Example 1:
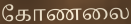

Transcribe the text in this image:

கோணலை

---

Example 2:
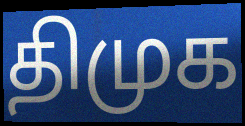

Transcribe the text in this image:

திமுக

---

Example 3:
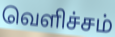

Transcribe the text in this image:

வெளிச்சம்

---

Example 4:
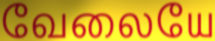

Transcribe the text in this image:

வேலையே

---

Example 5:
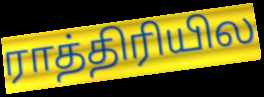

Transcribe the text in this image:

ராத்திரியில